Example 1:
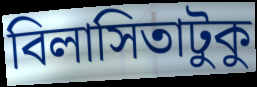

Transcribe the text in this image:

বিলাসিতাটুকু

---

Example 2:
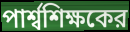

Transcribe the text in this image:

পার্শ্বশিক্ষকের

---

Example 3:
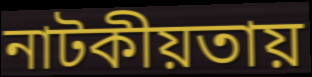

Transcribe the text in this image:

নাটকীয়তায়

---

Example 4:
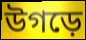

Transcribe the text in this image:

উগড়ে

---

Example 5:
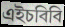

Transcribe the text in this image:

এইচবিবি